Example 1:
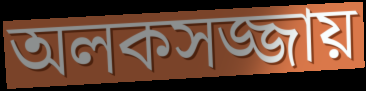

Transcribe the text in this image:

অলকসজ্জায়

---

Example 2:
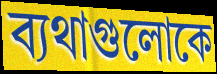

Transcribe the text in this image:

ব্যথাগুলোকে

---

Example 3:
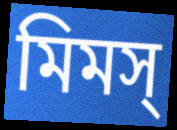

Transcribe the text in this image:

মিমস্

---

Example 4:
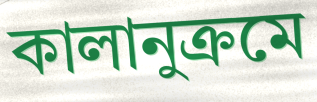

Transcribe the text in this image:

কালানুক্রমে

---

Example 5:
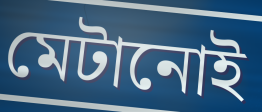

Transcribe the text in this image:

মেটানোই